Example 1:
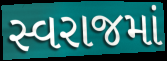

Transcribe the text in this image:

સ્વરાજમાં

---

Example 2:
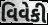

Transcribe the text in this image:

વિવેકી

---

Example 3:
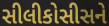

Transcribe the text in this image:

સીલીકોસીસને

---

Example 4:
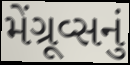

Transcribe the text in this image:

મેંગ્રૂવ્સનું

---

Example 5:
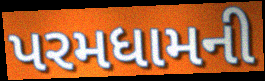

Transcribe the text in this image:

પરમધામની